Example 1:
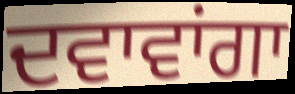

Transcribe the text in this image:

ਦਵਾਵਾਂਗਾ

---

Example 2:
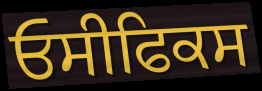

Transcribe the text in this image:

ਓਸੀਫਿਕਸ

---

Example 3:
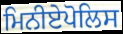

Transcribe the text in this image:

ਮਿਨੀਏਪੋਲਿਸ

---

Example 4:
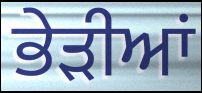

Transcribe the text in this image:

ਭੇੜੀਆਂ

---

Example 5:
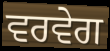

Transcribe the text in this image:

ਵਰਵੇਗ